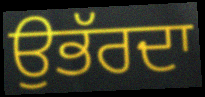
ਉਭੱਰਦਾ